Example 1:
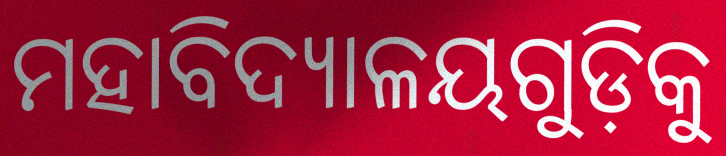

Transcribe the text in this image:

ମହାବିଦ୍ୟାଳୟଗୁଡ଼ିକୁ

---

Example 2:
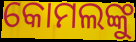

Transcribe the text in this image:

କୋମଲଙ୍କୁ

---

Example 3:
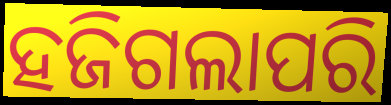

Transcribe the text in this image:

ହଜିଗଲାପରି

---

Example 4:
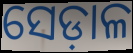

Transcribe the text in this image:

ସେଡ଼ାଳ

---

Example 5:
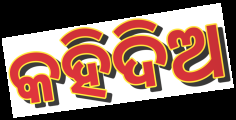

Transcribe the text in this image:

କହିଦିଅ